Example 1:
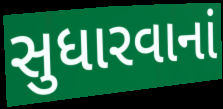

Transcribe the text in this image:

સુધારવાનાં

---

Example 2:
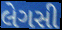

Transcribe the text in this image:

લેગસી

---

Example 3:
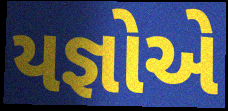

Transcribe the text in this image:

યજ્ઞોએ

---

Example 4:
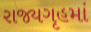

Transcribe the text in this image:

રાજ્યગૃહમાં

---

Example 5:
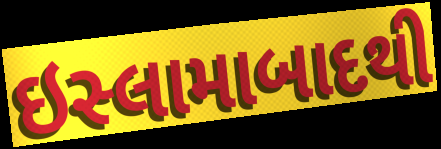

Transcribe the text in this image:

ઇસ્લામાબાદથી